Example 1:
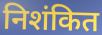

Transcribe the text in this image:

निशंकित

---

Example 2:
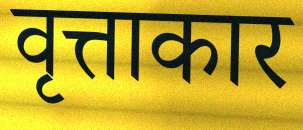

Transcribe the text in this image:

वृत्ताकार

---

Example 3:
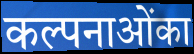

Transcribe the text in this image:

कल्पनाओंका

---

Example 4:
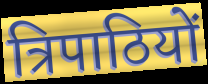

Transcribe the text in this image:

त्रिपाठियों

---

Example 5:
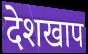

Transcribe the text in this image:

देशखाप